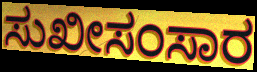
ಸುಖೀಸಂಸಾರ